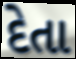
દેતા